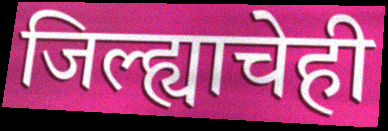
जिल्ह्याचेही